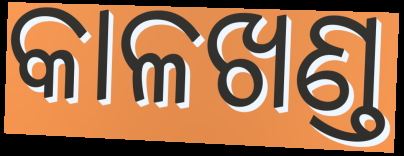
କାଳଖଣ୍ଡ